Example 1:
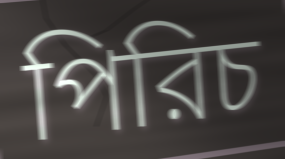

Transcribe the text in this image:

পিরিচ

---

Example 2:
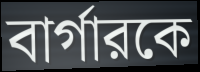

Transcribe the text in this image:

বার্গারকে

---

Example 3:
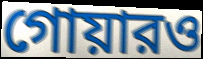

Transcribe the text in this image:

গোয়ারও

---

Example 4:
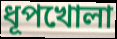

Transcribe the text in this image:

ধূপখোলা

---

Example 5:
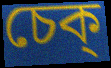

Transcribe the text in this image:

চেক্